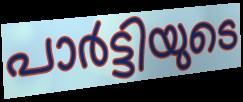
പാർട്ടിയുടെ